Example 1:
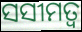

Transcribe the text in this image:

ସସୀମତ୍ୱ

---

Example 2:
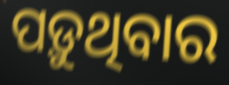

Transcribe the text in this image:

ପଡ଼ୁଥିବାର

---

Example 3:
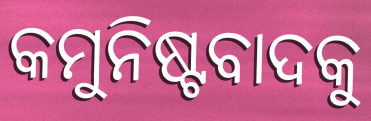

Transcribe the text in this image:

କମୁନିଷ୍ଟବାଦକୁ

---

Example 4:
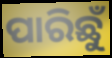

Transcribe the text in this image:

ପାରିଛୁଁ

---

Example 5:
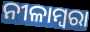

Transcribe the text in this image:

ନୀଳାମ୍ବରା